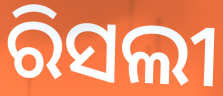
ରିସଲୀ